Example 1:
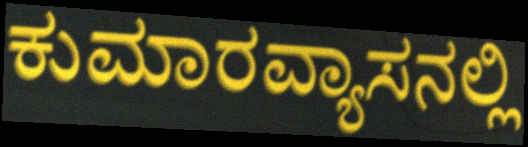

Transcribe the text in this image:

ಕುಮಾರವ್ಯಾಸನಲ್ಲಿ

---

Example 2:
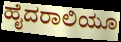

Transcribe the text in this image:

ಹೈದರಾಲಿಯೂ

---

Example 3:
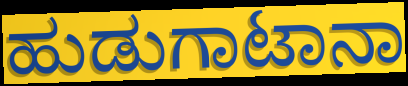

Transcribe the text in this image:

ಹುಡುಗಾಟಾನಾ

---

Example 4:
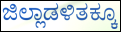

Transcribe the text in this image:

ಜಿಲ್ಲಾಡಳಿತಕ್ಕೂ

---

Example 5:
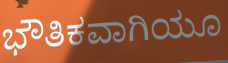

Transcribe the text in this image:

ಭೌತಿಕವಾಗಿಯೂ